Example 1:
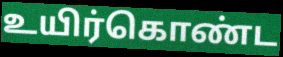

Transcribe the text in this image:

உயிர்கொண்ட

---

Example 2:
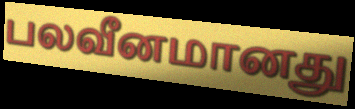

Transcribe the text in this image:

பலவீனமானது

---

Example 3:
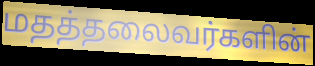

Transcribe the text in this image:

மதத்தலைவர்களின்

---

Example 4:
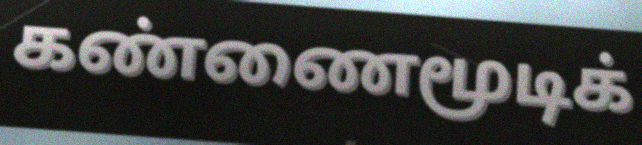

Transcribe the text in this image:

கண்ணைமூடிக்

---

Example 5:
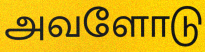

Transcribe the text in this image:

அவளோடு